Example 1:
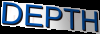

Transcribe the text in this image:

DEPTH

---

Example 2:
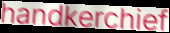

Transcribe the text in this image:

handkerchief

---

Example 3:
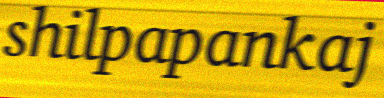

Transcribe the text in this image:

shilpapankaj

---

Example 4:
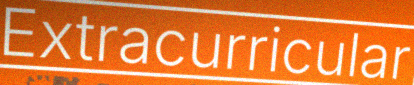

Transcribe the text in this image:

Extracurricular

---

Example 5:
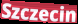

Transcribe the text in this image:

Szczecin